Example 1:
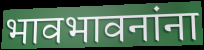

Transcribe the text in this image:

भावभावनांना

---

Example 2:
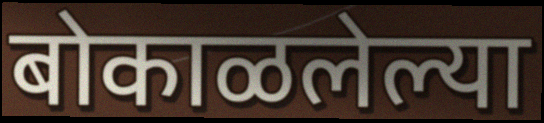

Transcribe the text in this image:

बोकाळलेल्या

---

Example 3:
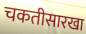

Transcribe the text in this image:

चकतीसारखा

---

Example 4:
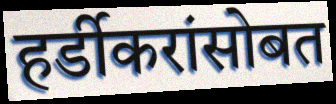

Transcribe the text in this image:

हर्डीकरांसोबत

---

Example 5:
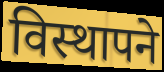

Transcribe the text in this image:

विस्थापने